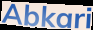
Abkari